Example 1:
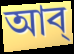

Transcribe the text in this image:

আব্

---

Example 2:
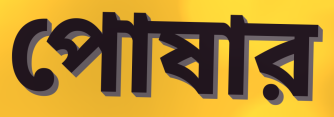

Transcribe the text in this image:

পোষার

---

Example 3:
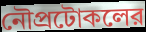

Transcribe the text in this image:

নৌপ্রটোকলের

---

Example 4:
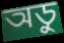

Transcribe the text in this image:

অডু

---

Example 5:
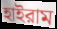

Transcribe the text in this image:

হাইরাম